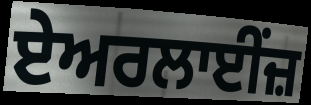
ਏਅਰਲਾਈਂਜ਼